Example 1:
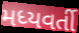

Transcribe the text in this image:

મધ્યવર્તી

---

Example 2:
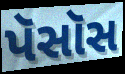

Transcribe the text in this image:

પૅસૉસ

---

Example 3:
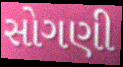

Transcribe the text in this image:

સોગણી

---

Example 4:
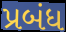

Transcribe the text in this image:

પ્રબંધ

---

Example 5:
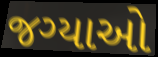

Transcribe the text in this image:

જગ્યાઓ